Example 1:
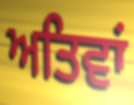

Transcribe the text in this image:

ਅਤਿਵਾਂ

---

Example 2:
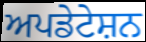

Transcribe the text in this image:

ਅਪਡੇਟੇਸ਼ਨ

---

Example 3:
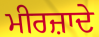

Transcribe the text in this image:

ਮੀਰਜ਼ਾਦੇ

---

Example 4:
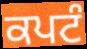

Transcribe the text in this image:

ਕਪਟੰ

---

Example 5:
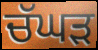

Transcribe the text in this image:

ਚੱਘੜ